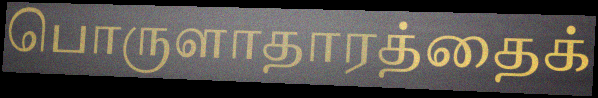
பொருளாதாரத்தைக்